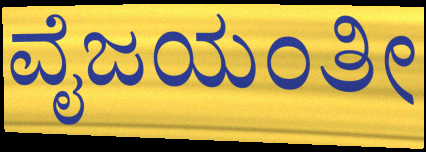
ವೈಜಯಂತೀ